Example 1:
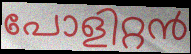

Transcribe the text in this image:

പോളിറ്റൻ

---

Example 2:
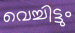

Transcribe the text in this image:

വെച്ചിട്ടും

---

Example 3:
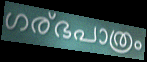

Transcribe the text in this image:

ഗര്ഭപാത്രം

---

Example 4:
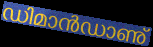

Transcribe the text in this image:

ഡിമാൻഡാണു്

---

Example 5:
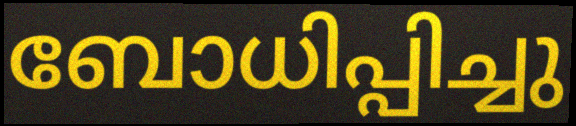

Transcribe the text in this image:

ബോധിപ്പിച്ചു